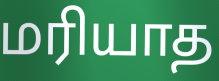
மரியாத